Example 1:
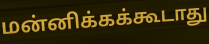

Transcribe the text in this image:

மன்னிக்கக்கூடாது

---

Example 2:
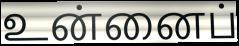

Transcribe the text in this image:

உன்னைப்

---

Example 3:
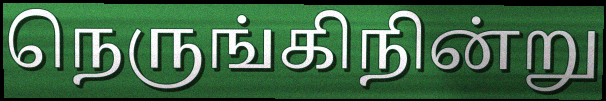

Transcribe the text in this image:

நெருங்கிநின்று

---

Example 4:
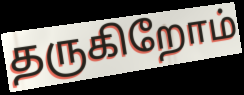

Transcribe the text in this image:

தருகிறோம்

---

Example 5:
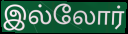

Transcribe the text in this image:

இல்லோர்